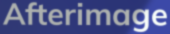
Afterimage